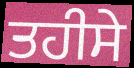
ਤਹੀਸੇ